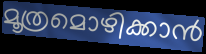
മൂത്രമൊഴിക്കാൻ